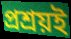
প্রশ্রয়ই